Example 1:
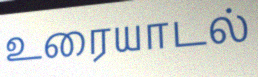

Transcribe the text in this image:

உரையாடல்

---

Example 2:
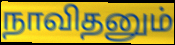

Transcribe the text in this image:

நாவிதனும்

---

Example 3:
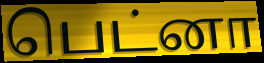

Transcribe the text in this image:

பெட்னா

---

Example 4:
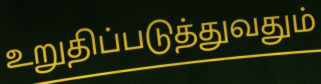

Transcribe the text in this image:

உறுதிப்படுத்துவதும்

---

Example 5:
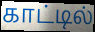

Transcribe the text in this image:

காட்டில்